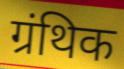
ग्रंथिक